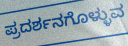
ಪ್ರದರ್ಶನಗೊಳ್ಳುವ